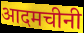
आदमचीनी